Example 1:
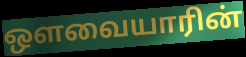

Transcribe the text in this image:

ஔவையாரின்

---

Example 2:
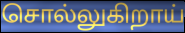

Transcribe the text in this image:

சொல்லுகிறாய்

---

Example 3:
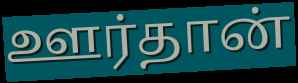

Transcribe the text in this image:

ஊர்தான்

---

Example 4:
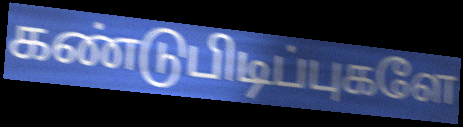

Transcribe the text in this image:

கண்டுபிடிப்புகளே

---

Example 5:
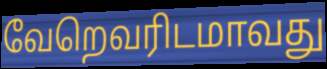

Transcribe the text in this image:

வேறெவரிடமாவது